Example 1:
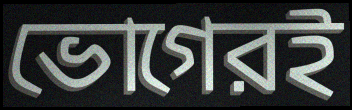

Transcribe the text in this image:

ভোগেরই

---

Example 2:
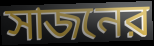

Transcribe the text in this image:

সাজনের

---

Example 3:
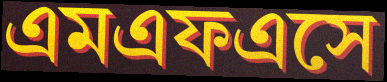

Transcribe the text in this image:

এমএফএসে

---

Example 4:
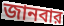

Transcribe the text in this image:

জানবার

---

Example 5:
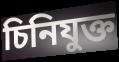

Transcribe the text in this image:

চিনিযুক্ত